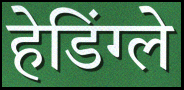
हेडिंग्‍ले